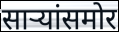
साऱ्यांसमोर